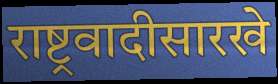
राष्ट्रवादीसारखे